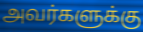
அவர்களுக்கு